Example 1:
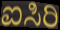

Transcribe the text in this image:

ಐಸಿರಿ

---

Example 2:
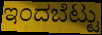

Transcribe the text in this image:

ಇಂದಬೆಟ್ಟು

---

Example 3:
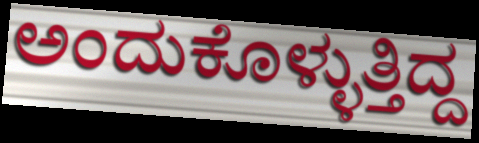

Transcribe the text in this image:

ಅಂದುಕೊಳ್ಳುತ್ತಿದ್ದ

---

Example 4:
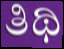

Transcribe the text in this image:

ತಿಥಿ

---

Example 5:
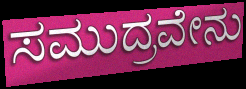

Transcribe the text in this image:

ಸಮುದ್ರವೇನು